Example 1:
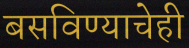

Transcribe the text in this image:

बसविण्याचेही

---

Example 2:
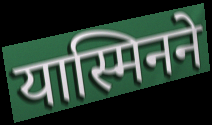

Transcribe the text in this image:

यास्मिनने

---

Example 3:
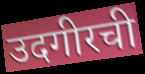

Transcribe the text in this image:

उदगीरची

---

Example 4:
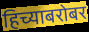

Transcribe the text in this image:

हिच्याबरोबर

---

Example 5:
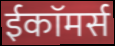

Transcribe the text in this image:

ईकॉमर्स